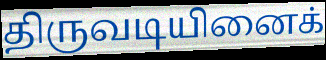
திருவடியினைக்